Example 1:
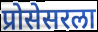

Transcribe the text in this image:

प्रोसेसरला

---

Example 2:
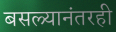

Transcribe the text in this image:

बसल्यानंतरही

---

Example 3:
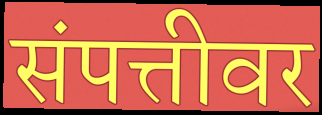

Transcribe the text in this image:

संपत्तीवर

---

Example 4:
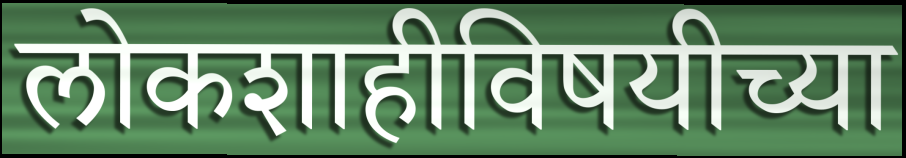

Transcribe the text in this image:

लोकशाहीविषयीच्या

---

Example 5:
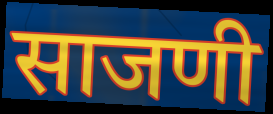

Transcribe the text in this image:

साजणी